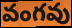
వంగవు